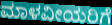
ಮಾಳವೀಯರಿಗೆ